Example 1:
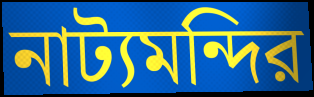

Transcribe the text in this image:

নাট্যমন্দির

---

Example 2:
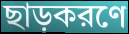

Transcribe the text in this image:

ছাড়করণে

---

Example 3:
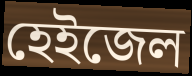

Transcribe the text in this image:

হেইজেল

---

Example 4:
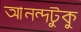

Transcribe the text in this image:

আনন্দটুকু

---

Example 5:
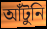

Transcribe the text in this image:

আঁটুনি